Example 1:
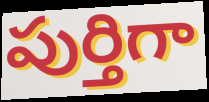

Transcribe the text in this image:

పుర్తిగా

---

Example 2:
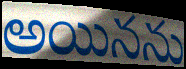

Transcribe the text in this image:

అయినను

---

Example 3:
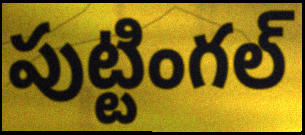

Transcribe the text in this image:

పుట్టింగల్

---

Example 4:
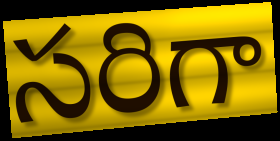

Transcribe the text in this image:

సరిగా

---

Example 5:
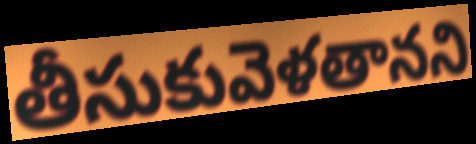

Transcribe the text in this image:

తీసుకువెళతానని